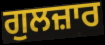
ਗੁਲਜ਼ਾਰ